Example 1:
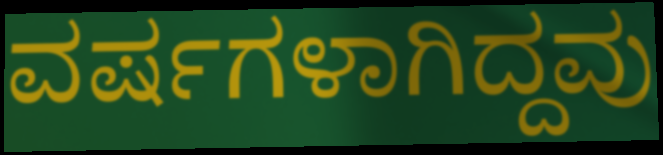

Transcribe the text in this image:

ವರ್ಷಗಳಾಗಿದ್ದವು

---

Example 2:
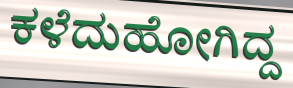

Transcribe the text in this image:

ಕಳೆದುಹೋಗಿದ್ದ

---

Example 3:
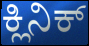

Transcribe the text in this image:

ಕ್ಲಿನಿಕ್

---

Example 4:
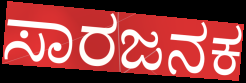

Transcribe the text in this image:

ಸಾರಜನಕ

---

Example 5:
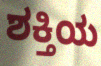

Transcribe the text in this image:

ಶಕ್ತಿಯ